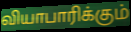
வியாபாரிக்கும்